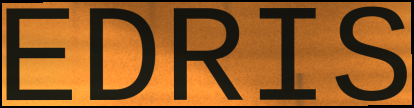
EDRIS